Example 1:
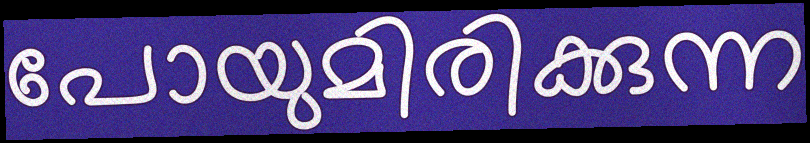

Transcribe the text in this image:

പോയുമിരിക്കുന്ന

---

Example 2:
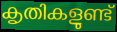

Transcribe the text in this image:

കൃതികളുണ്ട്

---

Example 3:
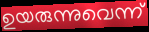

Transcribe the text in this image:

ഉയരുന്നുവെന്ന്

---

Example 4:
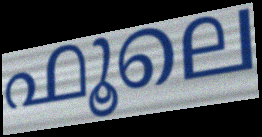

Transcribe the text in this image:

ഫൂലെ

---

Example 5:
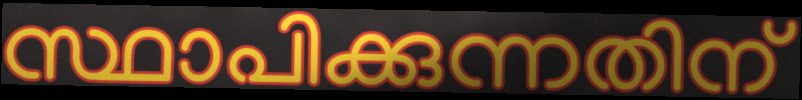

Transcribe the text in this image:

സ്ഥാപിക്കുന്നതിന്